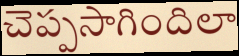
చెప్పసాగిందిలా